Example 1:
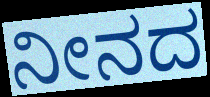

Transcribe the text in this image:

ನೀನದ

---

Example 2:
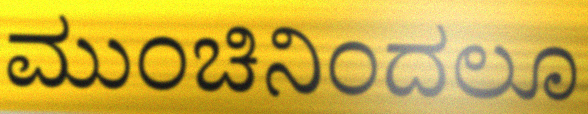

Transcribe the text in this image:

ಮುಂಚಿನಿಂದಲೂ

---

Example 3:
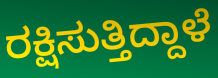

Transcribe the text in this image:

ರಕ್ಷಿಸುತ್ತಿದ್ದಾಳೆ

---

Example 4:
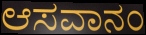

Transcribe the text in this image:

ಆಸವಾನಂ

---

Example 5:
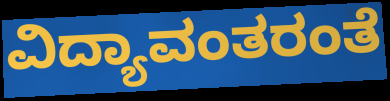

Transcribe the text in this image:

ವಿದ್ಯಾವಂತರಂತೆ